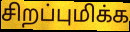
சிறப்புமிக்க